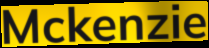
Mckenzie